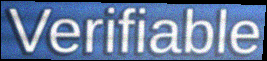
Verifiable